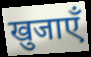
खुजाएँ